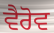
ਵੈਰੋਵ